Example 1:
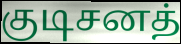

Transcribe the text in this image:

குடிசனத்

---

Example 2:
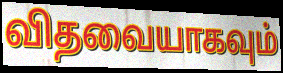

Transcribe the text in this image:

விதவையாகவும்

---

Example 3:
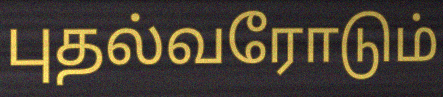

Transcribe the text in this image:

புதல்வரோடும்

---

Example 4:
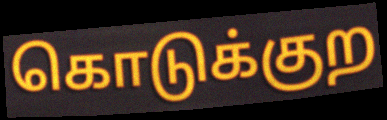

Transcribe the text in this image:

கொடுக்குற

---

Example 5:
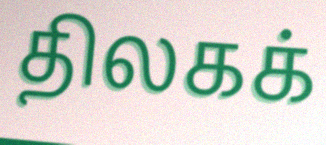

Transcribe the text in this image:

திலகக்